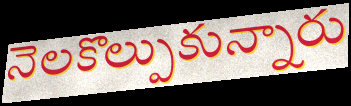
నెలకొల్పుకున్నారు